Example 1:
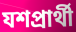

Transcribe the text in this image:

যশপ্রার্থী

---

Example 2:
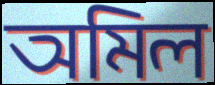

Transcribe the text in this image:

অমিল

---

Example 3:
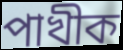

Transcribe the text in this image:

পাখীক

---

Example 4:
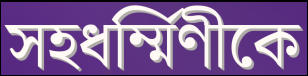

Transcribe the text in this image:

সহধর্ম্মিণীকে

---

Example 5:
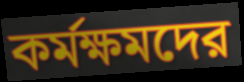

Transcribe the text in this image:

কর্মক্ষমদের